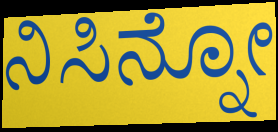
ನಿಸಿನ್ನೋ